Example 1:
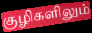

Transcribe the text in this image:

குழிகளிலும்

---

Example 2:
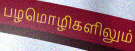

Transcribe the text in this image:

பழமொழிகளிலும்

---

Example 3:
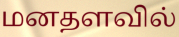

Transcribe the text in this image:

மனதளவில்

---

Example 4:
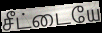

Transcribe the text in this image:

சீட்டையே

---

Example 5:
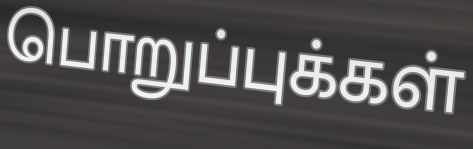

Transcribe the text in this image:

பொறுப்புக்கள்